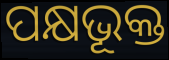
ପକ୍ଷଭୂକ୍ତ